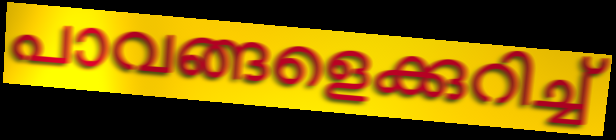
പാവങ്ങളെക്കുറിച്ച്